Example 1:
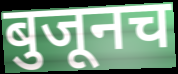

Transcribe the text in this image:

बुजूनच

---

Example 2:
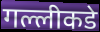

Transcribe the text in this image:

गल्लीकडे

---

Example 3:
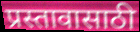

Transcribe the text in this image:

प्रस्तावासाठी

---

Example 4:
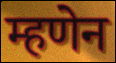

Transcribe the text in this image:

म्हणेन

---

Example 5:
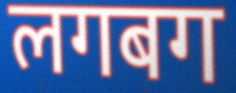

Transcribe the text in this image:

लगबग